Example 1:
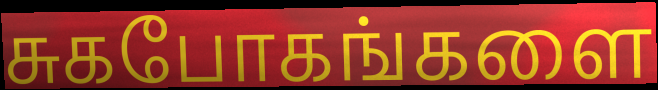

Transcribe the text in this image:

சுகபோகங்களை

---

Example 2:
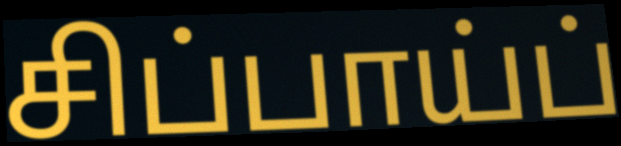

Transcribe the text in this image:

சிப்பாய்ப்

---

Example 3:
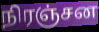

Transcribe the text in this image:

நிரஞ்சன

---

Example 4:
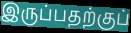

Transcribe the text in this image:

இருப்பதற்குப்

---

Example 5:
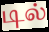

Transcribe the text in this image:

டில்